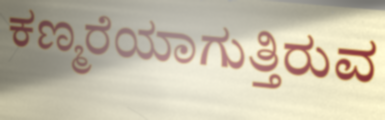
ಕಣ್ಮರೆಯಾಗುತ್ತಿರುವ